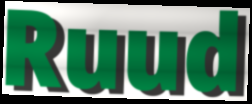
Ruud